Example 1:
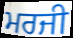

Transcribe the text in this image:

ਮਰਜੀ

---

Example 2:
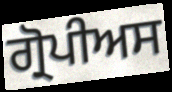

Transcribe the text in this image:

ਗ੍ਰੋਪੀਅਸ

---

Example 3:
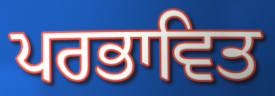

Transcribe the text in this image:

ਪਰਭਾਵਿਤ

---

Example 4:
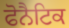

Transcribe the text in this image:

ਫੋਨੈਟਿਕ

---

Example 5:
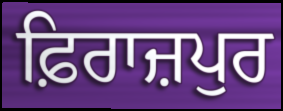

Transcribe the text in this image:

ਫ਼ਿਰਾਜ਼ਪੁਰ